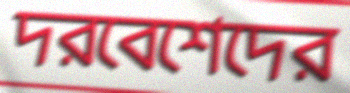
দরবেশেদের